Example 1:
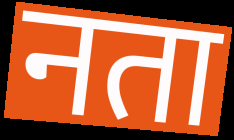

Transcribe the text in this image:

नता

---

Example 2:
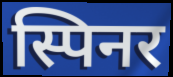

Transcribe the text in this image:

स्पिनर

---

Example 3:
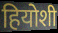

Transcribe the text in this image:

हियोशी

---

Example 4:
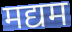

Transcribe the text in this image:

मद्यम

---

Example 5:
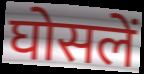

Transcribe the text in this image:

घोसलें